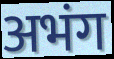
अभंग